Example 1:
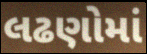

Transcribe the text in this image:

લઢણોમાં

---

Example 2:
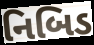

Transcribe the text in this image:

નિબિડ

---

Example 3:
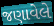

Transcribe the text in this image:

જણાવેલે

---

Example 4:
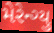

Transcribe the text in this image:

મેરેન્ગ્યુ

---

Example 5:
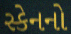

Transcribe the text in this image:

સ્કેનનો